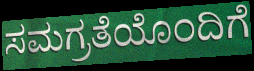
ಸಮಗ್ರತೆಯೊಂದಿಗೆ